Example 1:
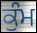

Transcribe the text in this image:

ਕੁੰਮ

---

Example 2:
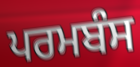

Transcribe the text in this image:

ਪਰਮਬੰਸ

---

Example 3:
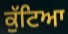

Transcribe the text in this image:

ਕੁੱਟਿਆ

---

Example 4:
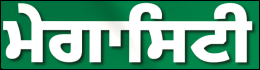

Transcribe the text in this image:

ਮੇਗਾਸਿਟੀ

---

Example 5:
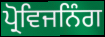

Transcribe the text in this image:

ਪ੍ਰੋਵਿਜਨਿੰਗ